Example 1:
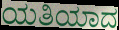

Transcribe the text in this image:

ಯತಿಯಾದ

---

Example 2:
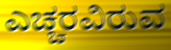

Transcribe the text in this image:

ಎಚ್ಚರವಿರುವ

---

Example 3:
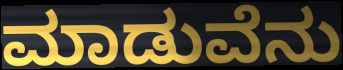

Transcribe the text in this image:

ಮಾಡುವೆನು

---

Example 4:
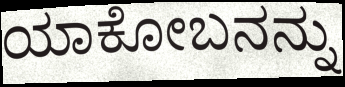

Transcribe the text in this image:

ಯಾಕೋಬನನ್ನು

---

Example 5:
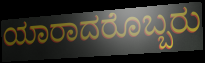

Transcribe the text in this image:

ಯಾರಾದರೊಬ್ಬರು